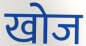
खोज